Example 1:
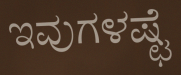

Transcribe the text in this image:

ಇವುಗಳಷ್ಟೆ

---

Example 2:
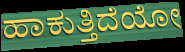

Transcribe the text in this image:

ಹಾಕುತ್ತಿದೆಯೋ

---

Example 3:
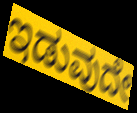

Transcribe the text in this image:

ಇಡುವುದೇ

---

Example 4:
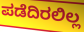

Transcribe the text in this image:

ಪಡೆದಿರಲಿಲ್ಲ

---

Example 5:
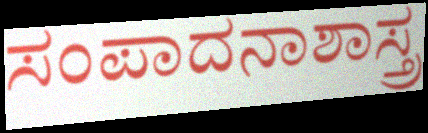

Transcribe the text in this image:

ಸಂಪಾದನಾಶಾಸ್ತ್ರ